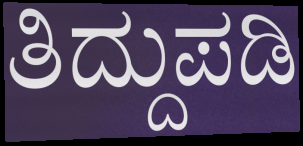
ತಿದ್ದುಪಡಿ